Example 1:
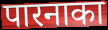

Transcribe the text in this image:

पारनाका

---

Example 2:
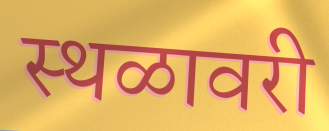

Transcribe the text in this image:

स्थळावरी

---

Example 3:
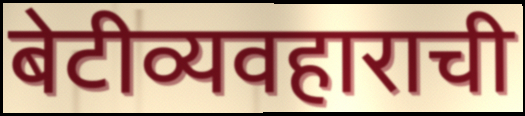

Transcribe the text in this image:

बेटीव्यवहाराची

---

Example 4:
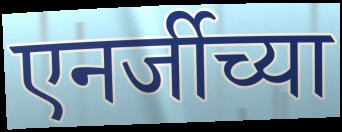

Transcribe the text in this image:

एनर्जीच्या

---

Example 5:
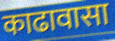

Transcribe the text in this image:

काढावासा